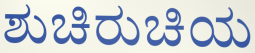
ಶುಚಿರುಚಿಯ